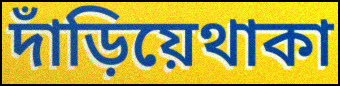
দাঁড়িয়েথাকা